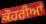
ਕੌਹਰੀਆਂ